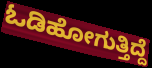
ಓಡಿಹೋಗುತ್ತಿದ್ದೆ